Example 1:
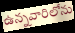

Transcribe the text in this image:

ఉన్నవారిలోను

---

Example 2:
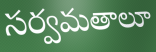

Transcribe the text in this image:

సర్వమతాలూ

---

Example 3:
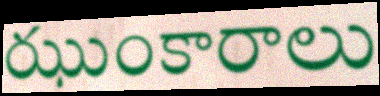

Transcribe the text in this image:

ఝుంకారాలు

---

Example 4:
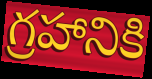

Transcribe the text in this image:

గ్రహానికి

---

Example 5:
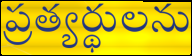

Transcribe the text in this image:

ప్రత్యర్థులను